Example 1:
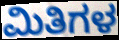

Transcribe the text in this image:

ಮಿತಿಗಳ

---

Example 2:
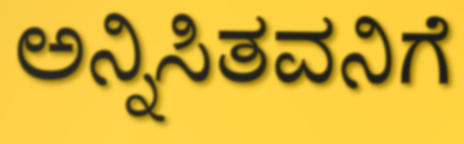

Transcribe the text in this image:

ಅನ್ನಿಸಿತವನಿಗೆ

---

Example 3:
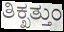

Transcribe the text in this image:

ತಿಕ್ಖತ್ತುಂ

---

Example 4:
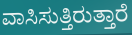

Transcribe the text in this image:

ವಾಸಿಸುತ್ತಿರುತ್ತಾರೆ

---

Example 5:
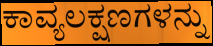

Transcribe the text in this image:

ಕಾವ್ಯಲಕ್ಷಣಗಳನ್ನು